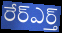
రేర్ఎర్త్